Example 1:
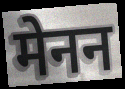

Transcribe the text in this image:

मेनन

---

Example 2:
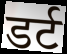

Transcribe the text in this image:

डर्ट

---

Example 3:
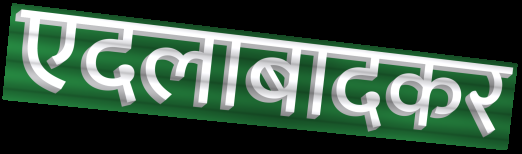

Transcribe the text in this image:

एदलाबादकर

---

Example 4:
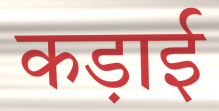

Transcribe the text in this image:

कड़ाई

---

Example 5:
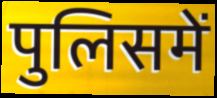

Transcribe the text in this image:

पुलिसमें